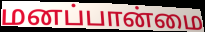
மனப்பான்மை